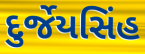
દુર્જેયસિંહ